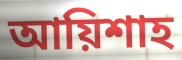
আয়িশাহ